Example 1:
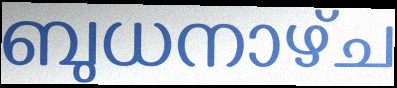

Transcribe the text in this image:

ബുധനാഴ്‌ച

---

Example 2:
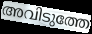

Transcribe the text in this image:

അവിടുത്തേ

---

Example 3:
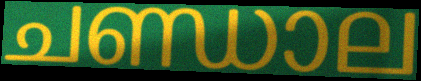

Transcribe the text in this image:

ചണ്ഡാല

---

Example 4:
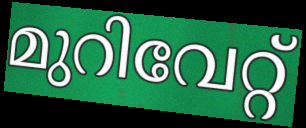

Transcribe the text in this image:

മുറിവേറ്റ്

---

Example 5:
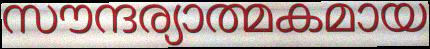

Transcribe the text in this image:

സൗന്ദര്യാത്മകമായ